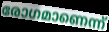
രോഗമാണെന്ന്